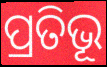
ପ୍ରତିଭୂ